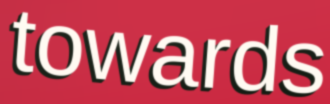
towards